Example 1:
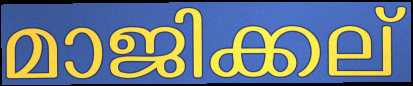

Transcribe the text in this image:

മാജിക്കല്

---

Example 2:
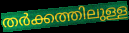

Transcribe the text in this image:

തർക്കത്തിലുള്ള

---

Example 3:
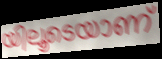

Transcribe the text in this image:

യിലൂടെയാണ്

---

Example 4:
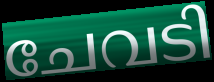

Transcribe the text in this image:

ചേവടി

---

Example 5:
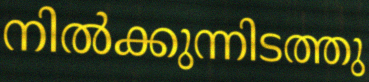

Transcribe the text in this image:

നിൽക്കുന്നിടത്തു